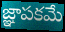
జ్ఞాపకమే